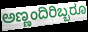
ಅಣ್ಣಂದಿರಿಬ್ಬರೂ